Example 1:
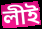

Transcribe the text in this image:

লীই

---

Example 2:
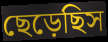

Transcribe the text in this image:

ছেড়েছিস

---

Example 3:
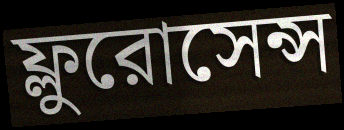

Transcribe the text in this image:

ফ্লুরোসেন্স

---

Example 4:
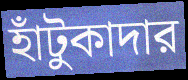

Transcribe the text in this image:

হাঁটুকাদার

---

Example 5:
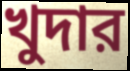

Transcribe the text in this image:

খুদার